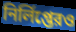
নির্লিপ্তেরও